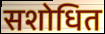
सशोधित